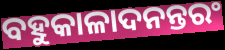
ବହୁକାଳାଦନନ୍ତରଂ